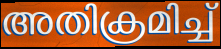
അതിക്രമിച്ച്